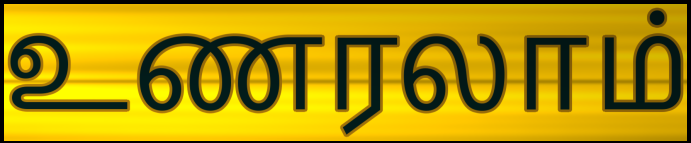
உணரலாம்